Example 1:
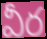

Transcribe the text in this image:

వీర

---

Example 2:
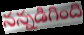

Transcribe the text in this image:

నన్నడిగింది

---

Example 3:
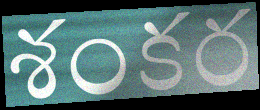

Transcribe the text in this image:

శంకర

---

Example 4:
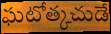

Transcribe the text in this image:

ఘటోత్కచుడే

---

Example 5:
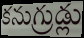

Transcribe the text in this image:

కనుగ్రుడ్లు